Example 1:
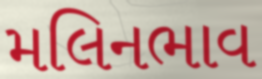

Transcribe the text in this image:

મલિનભાવ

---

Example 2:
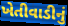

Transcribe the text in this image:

ખેતીવાડીનું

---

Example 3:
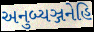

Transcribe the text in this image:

અનુબ્યઞ્જનેહિ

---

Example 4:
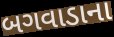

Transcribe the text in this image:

બગવાડાના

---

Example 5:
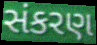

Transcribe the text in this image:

સંકરણ